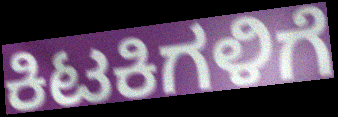
ಕಿಟಕಿಗಳಿಗೆ